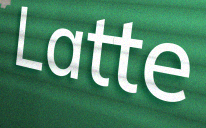
Latte